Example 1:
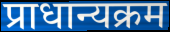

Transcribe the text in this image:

प्राधान्यक्रम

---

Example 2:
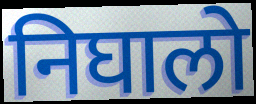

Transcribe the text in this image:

निघालो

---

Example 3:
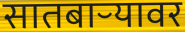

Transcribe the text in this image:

सातबाऱ्यावर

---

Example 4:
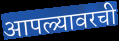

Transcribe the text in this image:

आपल्यावरची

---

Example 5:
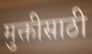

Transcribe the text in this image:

मुक्तीसाठी